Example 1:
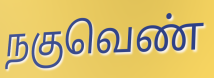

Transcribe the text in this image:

நகுவெண்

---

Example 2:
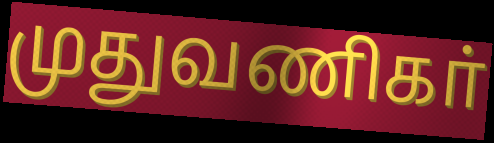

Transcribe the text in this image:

முதுவணிகர்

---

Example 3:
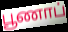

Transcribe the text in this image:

பூணாப்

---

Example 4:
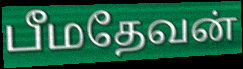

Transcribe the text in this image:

பீமதேவன்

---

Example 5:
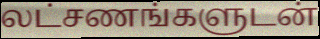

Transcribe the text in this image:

லட்சணங்களுடன்